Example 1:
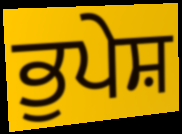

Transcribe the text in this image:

ਭੁਪੇਸ਼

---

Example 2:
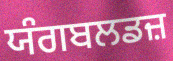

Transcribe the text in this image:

ਯੰਗਬਲਡਜ਼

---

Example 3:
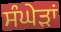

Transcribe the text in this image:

ਸੰਘੇੜਾਂ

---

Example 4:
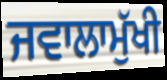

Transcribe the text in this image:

ਜਵਾਲਾਮੁੱਖੀ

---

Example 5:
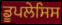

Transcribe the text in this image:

ਡੂਪਲੇਸਿਸ